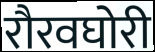
रौरवघोरी